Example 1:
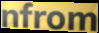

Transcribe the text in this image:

nfrom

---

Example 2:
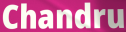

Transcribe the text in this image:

Chandru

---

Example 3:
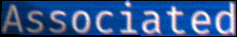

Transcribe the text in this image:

Associated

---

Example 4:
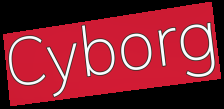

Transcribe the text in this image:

Cyborg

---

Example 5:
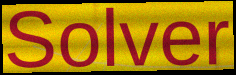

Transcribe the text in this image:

Solver